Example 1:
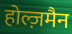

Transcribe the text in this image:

होल्ज़मैन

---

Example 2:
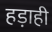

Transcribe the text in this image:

हड़ाही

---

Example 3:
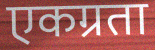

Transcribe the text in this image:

एकग्रता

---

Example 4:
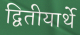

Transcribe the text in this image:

द्वितीयार्थे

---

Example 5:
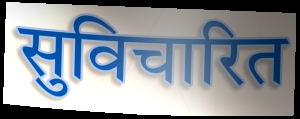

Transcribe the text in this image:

सुविचारित